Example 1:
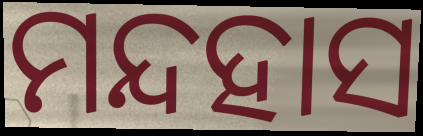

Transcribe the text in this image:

ମନ୍ଦହାସ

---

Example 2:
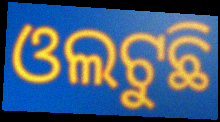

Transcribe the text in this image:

ଓଲଟୁଛି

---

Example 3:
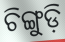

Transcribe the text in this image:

ଚିଙ୍ଗୁଡ଼ି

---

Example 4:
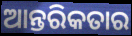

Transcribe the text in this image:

ଆନ୍ତରିକତାର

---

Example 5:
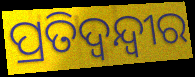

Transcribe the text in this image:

ପ୍ରତିଦ୍ବନ୍ଦ୍ବୀର